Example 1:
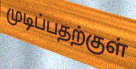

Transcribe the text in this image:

முடிப்பதற்குள்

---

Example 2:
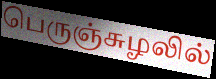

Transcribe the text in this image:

பெருஞ்சுழலில்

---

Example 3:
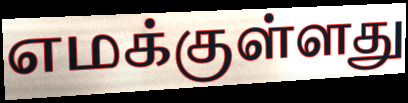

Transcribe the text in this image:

எமக்குள்ளது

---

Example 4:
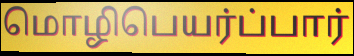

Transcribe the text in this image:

மொழிபெயர்ப்பார்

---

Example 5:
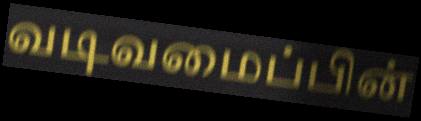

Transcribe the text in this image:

வடிவமைப்பின்